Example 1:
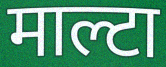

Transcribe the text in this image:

माल्टा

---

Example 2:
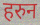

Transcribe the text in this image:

हरुन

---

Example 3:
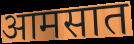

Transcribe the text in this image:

आमसात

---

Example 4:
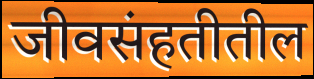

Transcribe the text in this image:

जीवसंहतीतील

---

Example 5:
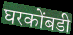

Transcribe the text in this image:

घरकोंबडी